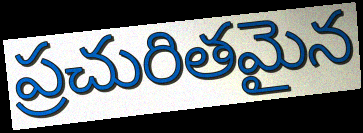
ప్రచురితమైన